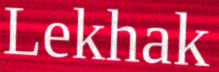
Lekhak